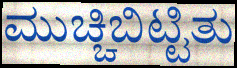
ಮುಚ್ಚಿಬಿಟ್ಟಿತು